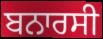
ਬਨਾਰਸੀ